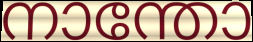
നാന്തോ